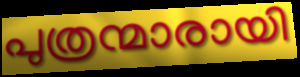
പുത്രന്മാരായി